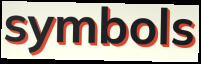
symbols